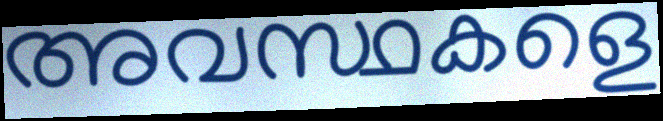
അവസ്ഥകളെ